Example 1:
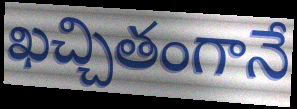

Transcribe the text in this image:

ఖచ్చితంగానే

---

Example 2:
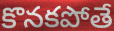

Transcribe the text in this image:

కొనకపోతే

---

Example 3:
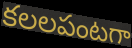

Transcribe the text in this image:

కలలపంటగా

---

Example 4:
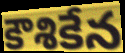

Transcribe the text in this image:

కౌశికేన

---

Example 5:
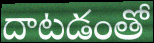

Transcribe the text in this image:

దాటడంతో